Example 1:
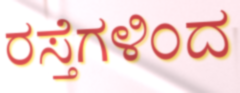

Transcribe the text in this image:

ರಸ್ತೆಗಳಿಂದ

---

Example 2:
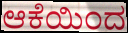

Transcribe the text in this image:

ಆಕೆಯಿಂದ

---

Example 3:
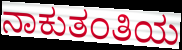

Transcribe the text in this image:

ನಾಕುತಂತಿಯ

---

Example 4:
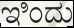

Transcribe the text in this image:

ಇಿಂದು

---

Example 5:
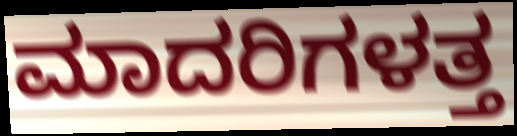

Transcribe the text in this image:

ಮಾದರಿಗಳತ್ತ